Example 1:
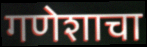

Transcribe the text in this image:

गणेशाचा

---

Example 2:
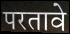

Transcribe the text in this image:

परतावे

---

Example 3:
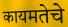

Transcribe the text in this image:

कायमतेचे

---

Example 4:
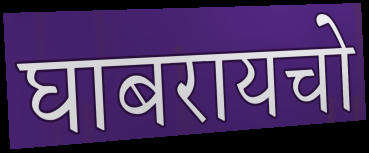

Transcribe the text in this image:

घाबरायचो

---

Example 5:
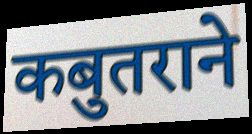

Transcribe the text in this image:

कबुतराने